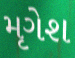
મૃગેશ